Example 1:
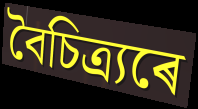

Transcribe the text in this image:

বৈচিত্ৰ্যৰে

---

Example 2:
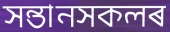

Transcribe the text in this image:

সন্তানসকলৰ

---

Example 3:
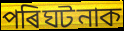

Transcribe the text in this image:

পৰিঘটনাক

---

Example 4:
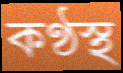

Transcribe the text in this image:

কণ্ঠস্থ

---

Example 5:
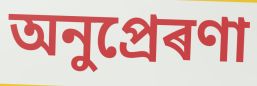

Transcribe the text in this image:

অনুপ্ৰেৰণা